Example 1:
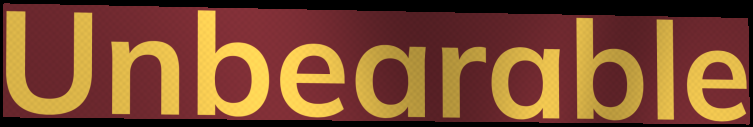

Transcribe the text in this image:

Unbearable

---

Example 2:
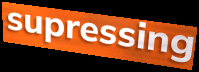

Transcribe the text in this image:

supressing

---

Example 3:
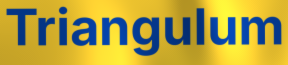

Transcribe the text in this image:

Triangulum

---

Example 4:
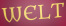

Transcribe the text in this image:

WELT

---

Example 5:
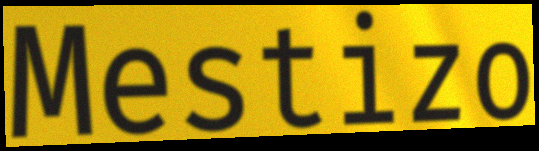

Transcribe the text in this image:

Mestizo